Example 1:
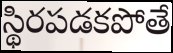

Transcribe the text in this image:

స్థిరపడకపోతే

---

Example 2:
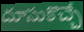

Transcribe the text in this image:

దూసుకొచ్చే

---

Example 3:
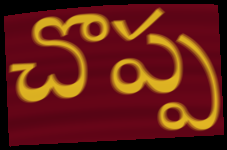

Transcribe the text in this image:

చొప్ప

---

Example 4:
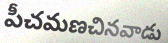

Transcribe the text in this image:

పీచమణచినవాడు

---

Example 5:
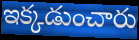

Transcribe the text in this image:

ఇక్కడుంచారు